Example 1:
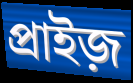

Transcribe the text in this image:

প্রাইজ়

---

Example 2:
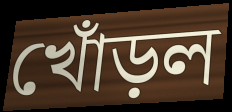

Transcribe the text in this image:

খোঁড়ল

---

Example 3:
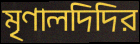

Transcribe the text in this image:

মৃণালদিদির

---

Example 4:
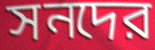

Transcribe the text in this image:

সনদের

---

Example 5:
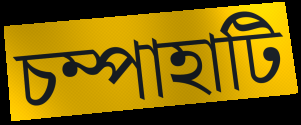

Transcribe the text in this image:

চম্পাহাটি